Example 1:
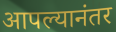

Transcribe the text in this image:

आपल्यानंतर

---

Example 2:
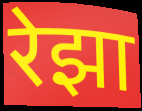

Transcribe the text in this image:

रेझा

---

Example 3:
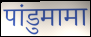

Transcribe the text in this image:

पांडुमामा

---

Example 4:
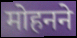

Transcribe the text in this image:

मोहनने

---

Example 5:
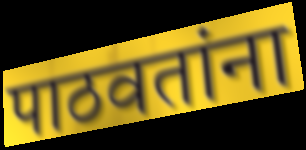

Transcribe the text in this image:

पाठवतांना